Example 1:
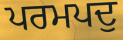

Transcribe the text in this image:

ਪਰਮਪਦੁ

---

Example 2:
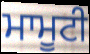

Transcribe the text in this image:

ਮਾਮੂਟੀ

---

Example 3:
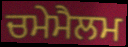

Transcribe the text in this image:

ਚਮੇਮੈਲਮ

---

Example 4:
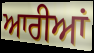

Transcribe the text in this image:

ਆਰੀਆਂ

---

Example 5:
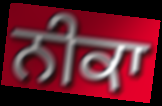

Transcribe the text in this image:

ਨੀਕਾ